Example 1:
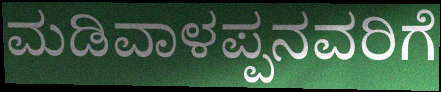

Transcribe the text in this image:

ಮಡಿವಾಳಪ್ಪನವರಿಗೆ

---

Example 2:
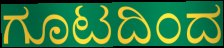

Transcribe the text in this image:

ಗೂಟದಿಂದ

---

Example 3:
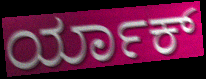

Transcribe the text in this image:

ರ್ಯಾಕ್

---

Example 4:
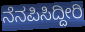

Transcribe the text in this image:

ನೆನಪಿಸಿದ್ದೀರಿ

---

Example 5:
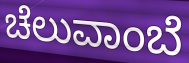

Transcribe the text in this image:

ಚೆಲುವಾಂಬೆ